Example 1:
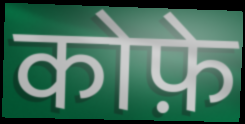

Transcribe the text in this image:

कोफ़े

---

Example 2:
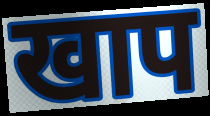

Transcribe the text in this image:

खाप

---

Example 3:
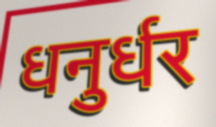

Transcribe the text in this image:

धनुर्धर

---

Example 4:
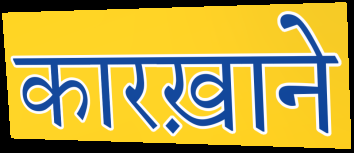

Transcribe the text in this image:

कारख़ाने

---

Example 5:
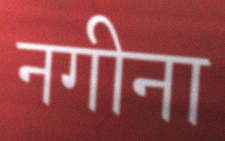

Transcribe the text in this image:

नगीना